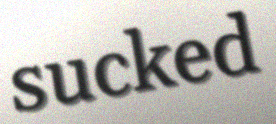
sucked